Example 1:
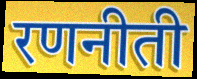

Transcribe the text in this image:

रणनीती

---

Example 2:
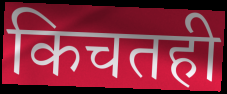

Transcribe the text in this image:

किचतही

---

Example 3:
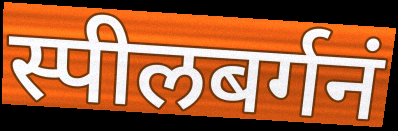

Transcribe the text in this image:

स्पीलबर्गनं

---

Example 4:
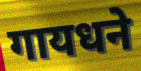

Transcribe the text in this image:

गायधने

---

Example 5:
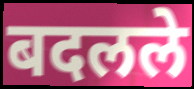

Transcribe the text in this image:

बदलले